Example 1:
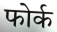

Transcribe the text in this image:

फोर्क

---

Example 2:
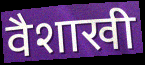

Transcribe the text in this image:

वैशाखी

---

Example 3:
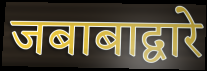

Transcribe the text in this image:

जबाबाद्वारे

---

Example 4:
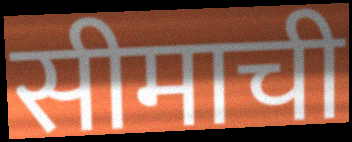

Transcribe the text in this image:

सीमाची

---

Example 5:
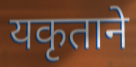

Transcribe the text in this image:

यकृताने